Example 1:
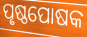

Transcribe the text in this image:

ପୃଷ୍ଠପୋଷକ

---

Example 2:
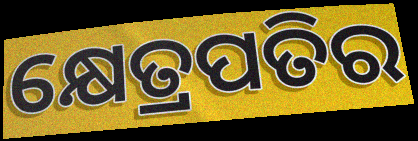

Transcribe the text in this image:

କ୍ଷେତ୍ରପତିର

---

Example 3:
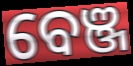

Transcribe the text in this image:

ବେଞ୍ଜ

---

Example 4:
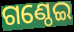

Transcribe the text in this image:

ଗଣ୍ଠେଇ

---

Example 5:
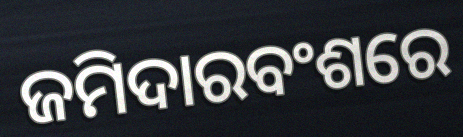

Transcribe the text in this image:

ଜମିଦାରବଂଶରେ